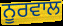
ਨੂਰਵਾਲ